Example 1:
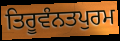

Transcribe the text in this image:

ਤਿਰੂਵੰਨਤਪੁਰਮ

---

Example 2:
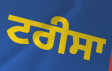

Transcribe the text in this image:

ਟਰੀਸਾ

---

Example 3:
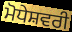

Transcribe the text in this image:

ਮੋਧੇਸ਼ਵਰੀ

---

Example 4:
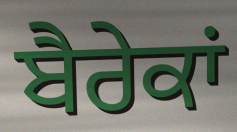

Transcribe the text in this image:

ਬੈਰੇਕਾਂ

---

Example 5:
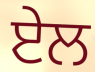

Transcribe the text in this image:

ਏਲ